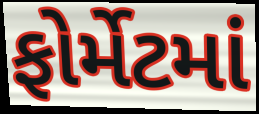
ફોર્મેટમાં